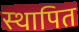
स्थापित